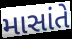
માસાંતે